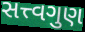
સત્ત્વગુણ